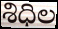
శిధిల